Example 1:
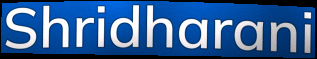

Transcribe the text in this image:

Shridharani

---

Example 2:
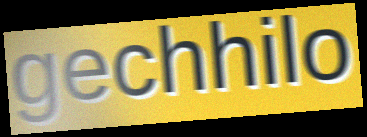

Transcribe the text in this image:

gechhilo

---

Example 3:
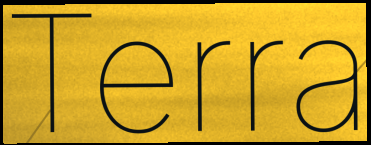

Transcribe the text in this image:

Terra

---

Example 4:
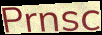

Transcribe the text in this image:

Prnsc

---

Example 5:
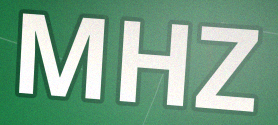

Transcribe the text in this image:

MHZ